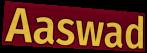
Aaswad